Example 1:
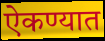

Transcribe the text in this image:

ऐकण्यात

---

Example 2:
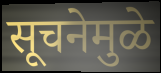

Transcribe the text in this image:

सूचनेमुळे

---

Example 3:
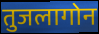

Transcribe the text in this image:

तुजलागोन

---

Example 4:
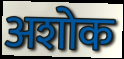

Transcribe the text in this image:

अशोक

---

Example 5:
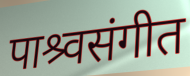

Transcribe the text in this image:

पाश्र्वसंगीत